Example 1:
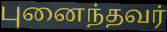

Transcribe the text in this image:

புனைந்தவர்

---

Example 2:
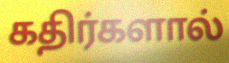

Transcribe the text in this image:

கதிர்களால்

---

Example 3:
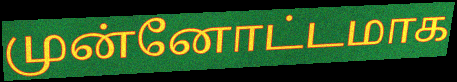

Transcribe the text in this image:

முன்னோட்டமாக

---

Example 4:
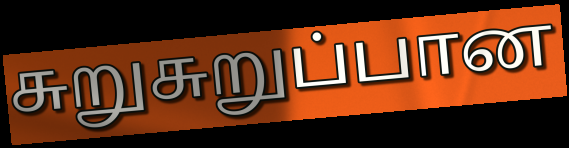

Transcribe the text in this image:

சுறுசுறுப்பான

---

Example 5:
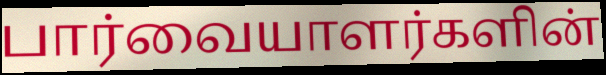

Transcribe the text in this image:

பார்வையாளர்களின்